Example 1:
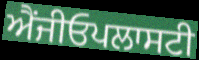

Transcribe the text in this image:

ਐਂਜੀਓਪਲਾਸਟੀ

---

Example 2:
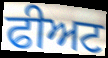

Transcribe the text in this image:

ਫੀਅਟ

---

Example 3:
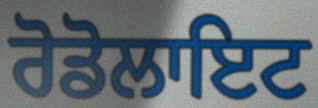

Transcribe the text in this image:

ਰੋਡੋਲਾਇਟ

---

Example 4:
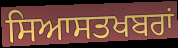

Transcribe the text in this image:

ਸਿਆਸਤਖਬਰਾਂ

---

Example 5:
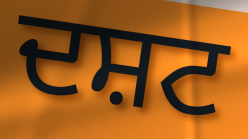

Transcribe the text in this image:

ਦਸ਼ਟ